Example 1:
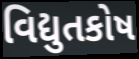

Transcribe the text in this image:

વિદ્યુતકોષ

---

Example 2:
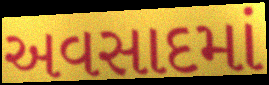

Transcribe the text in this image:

અવસાદમાં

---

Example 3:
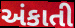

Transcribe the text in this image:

અંકાતી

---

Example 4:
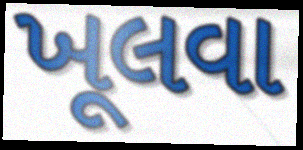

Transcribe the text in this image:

ખૂલવા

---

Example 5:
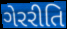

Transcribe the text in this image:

ગેરરીતિ